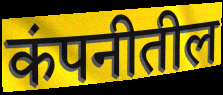
कंपनीतील